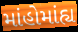
માંહોમાંહ્ય